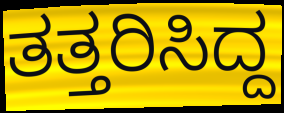
ತತ್ತರಿಸಿದ್ದ